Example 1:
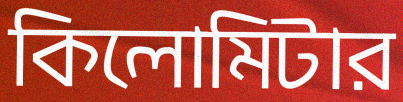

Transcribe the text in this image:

কিলোমিটার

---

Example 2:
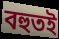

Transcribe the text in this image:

বহুতই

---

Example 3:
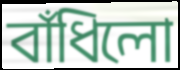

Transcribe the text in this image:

বাঁধিলো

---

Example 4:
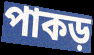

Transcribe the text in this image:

পাকড়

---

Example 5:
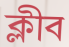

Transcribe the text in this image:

ক্লীব